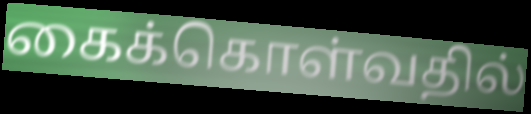
கைக்கொள்வதில்